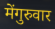
मेंगुरुवार